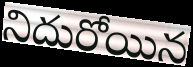
నిదురోయిన